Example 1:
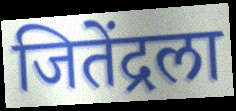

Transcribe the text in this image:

जितेंद्रला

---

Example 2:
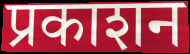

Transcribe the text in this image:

प्रकाशन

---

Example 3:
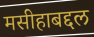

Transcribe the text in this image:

मसीहाबद्दल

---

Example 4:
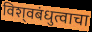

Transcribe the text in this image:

विश्वबंधुत्वाचा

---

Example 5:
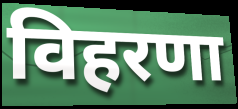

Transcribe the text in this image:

विहरणा